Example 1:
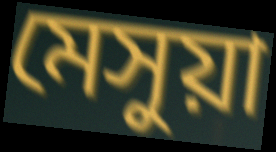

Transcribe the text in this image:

মেসুয়া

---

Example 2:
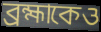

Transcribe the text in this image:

ব্রহ্মাকেও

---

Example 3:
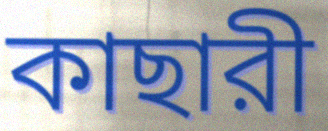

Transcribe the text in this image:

কাছারী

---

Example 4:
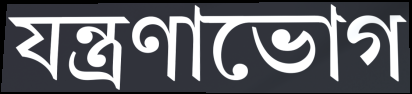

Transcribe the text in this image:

যন্ত্রণাভোগ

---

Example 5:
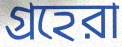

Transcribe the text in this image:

গ্রহেরা